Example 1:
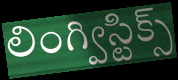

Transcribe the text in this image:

లింగ్విస్టిక్స్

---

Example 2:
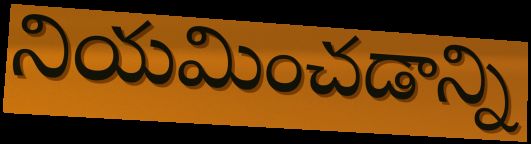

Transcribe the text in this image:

నియమించడాన్ని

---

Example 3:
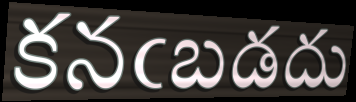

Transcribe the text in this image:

కనఁబడదు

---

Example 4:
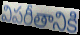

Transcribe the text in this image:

విపరీతానికి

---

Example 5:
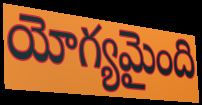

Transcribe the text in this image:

యోగ్యమైంది